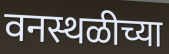
वनस्थळीच्या